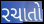
રચાતો